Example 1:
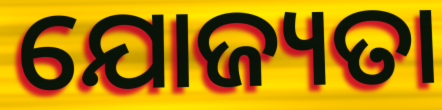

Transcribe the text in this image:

ଯୋଜ୍ୟତା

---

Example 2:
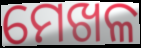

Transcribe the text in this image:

ମେଖଳ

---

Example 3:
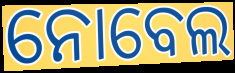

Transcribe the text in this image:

ନୋବେଲ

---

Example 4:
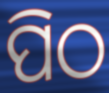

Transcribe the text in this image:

ପିଠ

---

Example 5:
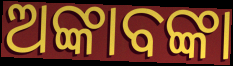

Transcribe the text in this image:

ଅଙ୍କାବଙ୍କା